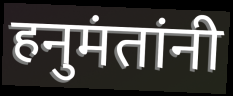
हनुमंतांनी